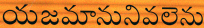
యజమానునివలెను